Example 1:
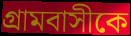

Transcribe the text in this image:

গ্রামবাসীকে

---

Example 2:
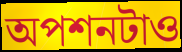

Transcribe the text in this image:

অপশনটাও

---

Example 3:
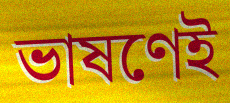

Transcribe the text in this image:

ভাষণেই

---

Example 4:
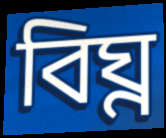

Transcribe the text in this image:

বিঘ্ন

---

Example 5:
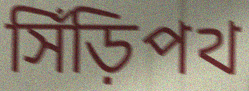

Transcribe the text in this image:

সিঁড়িপথ